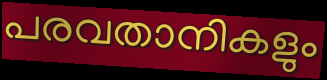
പരവതാനികളും